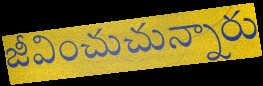
జీవించుచున్నారు